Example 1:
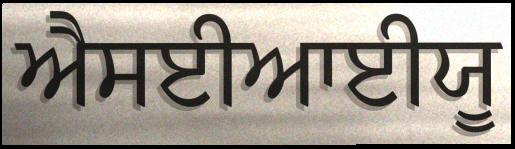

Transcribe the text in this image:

ਐਸਈਆਈਯੂ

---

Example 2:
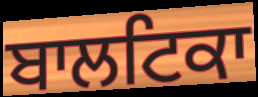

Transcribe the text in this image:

ਬਾਲਟਿਕਾ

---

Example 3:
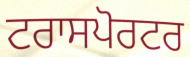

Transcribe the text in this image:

ਟਰਾਸਪੋਰਟਰ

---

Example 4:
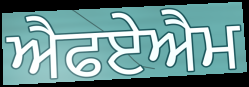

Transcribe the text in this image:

ਐਫਏਐਮ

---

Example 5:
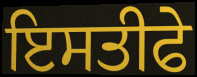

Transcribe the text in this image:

ਇਸਤੀਫੇ